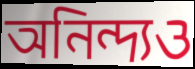
অনিন্দ্যও